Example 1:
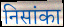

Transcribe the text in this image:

निसांका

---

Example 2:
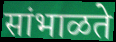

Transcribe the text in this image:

सांभाळते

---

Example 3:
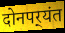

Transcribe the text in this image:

दोनपर्यंत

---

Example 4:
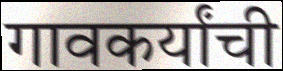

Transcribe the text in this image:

गावकर्यांची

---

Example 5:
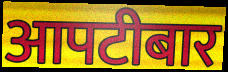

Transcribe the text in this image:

आपटीबार